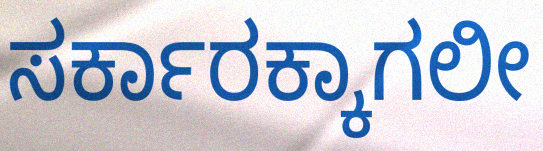
ಸರ್ಕಾರಕ್ಕಾಗಲೀ